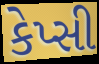
કેપ્સી